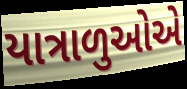
યાત્રાળુઓએ